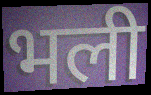
भली